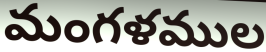
మంగళముల